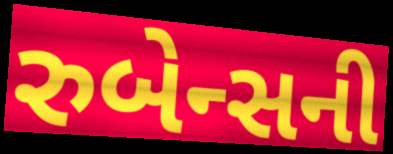
રુબેન્સની